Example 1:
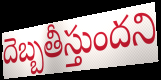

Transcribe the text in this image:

దెబ్బతీస్తుందని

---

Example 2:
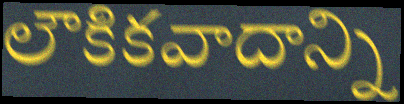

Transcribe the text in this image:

లౌకికవాదాన్ని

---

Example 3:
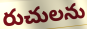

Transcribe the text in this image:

రుచులను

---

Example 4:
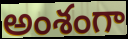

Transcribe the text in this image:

అంశంగా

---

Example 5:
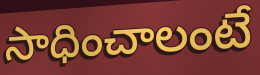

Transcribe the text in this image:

సాధించాలంటే